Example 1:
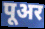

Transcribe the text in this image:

पूअर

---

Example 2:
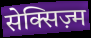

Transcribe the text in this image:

सेक्सिज़्म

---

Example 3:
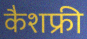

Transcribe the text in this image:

कैशफ्री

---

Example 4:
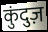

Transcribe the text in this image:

कुंदुज़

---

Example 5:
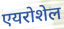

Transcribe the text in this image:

एयरोशेल